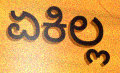
ಏಕಿಲ್ಲ